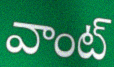
వాంట్